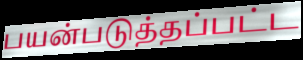
பயன்படுத்தப்பட்ட